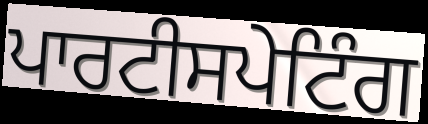
ਪਾਰਟੀਸਪੇਟਿੰਗ